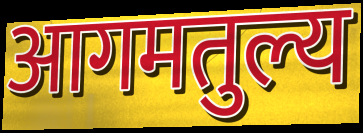
आगमतुल्य